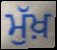
ਮੁੱਖ਼